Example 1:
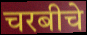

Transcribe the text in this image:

चरबीचे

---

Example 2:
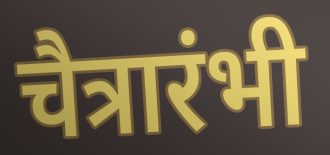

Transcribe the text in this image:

चैत्रारंभी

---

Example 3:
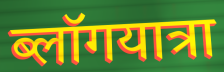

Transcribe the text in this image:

ब्लॉगयात्रा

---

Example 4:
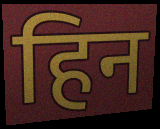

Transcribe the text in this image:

हिन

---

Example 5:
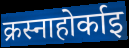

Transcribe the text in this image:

क्रस्नाहोर्काइ